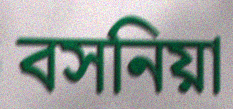
বসনিয়া